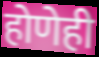
होणेही